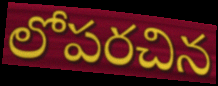
లోపరచిన